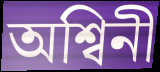
অশ্বিনী